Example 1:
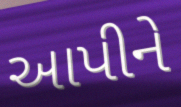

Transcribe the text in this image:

આપીને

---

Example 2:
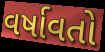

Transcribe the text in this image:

વર્ષાવતો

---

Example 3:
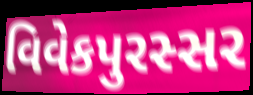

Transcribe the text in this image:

વિવેકપુરસ્સર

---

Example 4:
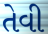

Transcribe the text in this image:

તેવી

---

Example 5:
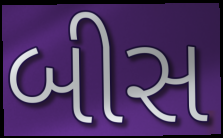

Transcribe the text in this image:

બીસ